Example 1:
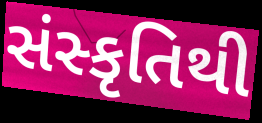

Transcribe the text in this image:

સંસ્કૃતિથી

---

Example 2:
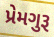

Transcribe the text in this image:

પ્રેમગુરૂ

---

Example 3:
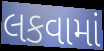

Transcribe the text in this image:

લકવામાં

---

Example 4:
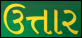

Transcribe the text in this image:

ઉત્તાર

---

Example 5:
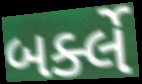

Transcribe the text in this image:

બર્ક્લે